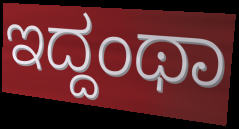
ಇದ್ದಂಥಾ